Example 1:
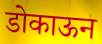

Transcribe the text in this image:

डोकाऊन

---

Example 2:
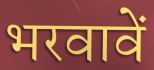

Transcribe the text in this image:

भरवावें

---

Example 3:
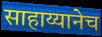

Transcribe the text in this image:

साहाय्यानेच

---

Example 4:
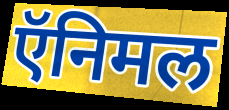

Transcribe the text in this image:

ऍनिमल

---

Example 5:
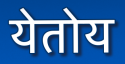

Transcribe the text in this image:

येतोय